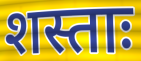
शस्ताः